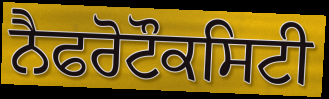
ਨੈਫਰੋਟੌਕਸਿਟੀ